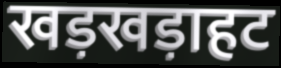
खड़खड़ाहट